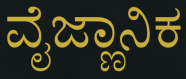
ವೈಜ್ಣಾನಿಕ